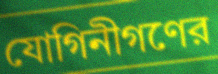
যোগিনীগণের